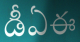
డీఏఈ